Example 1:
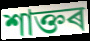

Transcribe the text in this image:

শাক্তৰ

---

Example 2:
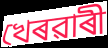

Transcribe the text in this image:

খেৰৱাৰী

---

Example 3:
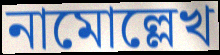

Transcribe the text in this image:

নামোল্লেখ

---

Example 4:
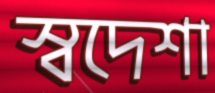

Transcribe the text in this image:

স্বদেশা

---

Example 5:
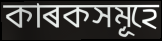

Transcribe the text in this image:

কাৰকসমূহে